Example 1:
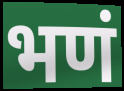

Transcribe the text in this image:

भणं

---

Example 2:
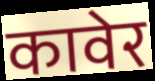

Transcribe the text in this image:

कावेर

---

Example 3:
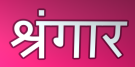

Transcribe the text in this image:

श्रंगार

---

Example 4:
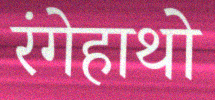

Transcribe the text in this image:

रंगेहाथो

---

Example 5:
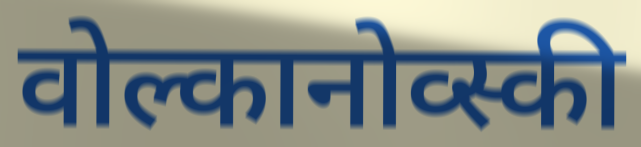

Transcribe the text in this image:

वोल्कानोव्स्की